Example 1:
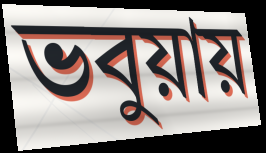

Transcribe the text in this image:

ভবুয়ায়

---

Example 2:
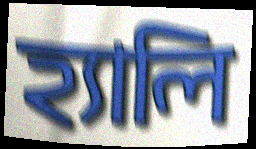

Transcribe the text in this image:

হ্যালি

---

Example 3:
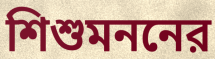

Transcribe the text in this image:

শিশুমননের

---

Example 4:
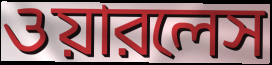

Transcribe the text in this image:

ওয়ারলেস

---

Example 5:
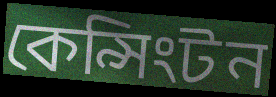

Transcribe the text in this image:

কেন্সিংটন